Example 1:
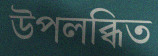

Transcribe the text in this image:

উপলব্ধিত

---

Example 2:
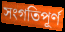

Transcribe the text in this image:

সংগতিপূৰ্ণ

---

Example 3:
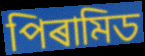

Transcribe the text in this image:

পিৰামিড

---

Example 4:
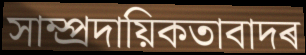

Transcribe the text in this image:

সাম্প্ৰদায়িকতাবাদৰ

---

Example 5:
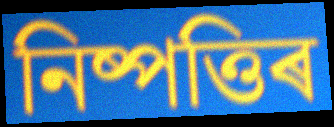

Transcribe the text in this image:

নিষ্পত্তিৰ